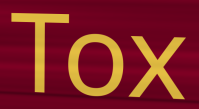
Tox